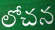
లోచన